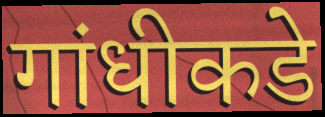
गांधीकडे